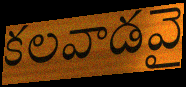
కలవాడవై